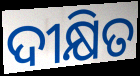
ଦୀକ୍ଷିତ